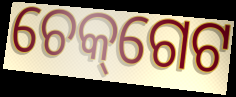
ଚେକ୍‌ଗେଟ